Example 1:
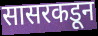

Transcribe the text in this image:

सासरकडून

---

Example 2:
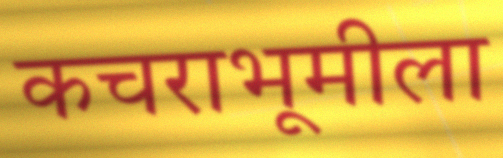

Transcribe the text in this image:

कचराभूमीला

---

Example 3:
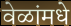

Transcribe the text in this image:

वेळांमधे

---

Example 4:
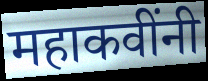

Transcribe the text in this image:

महाकवींनी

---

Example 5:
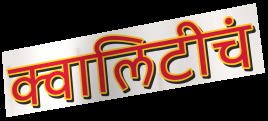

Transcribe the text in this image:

क्वालिटीचं